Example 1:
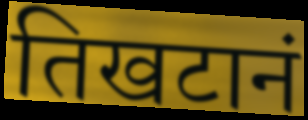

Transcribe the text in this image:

तिखटानं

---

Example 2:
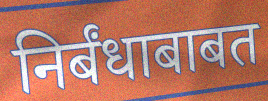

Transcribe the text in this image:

निर्बंधाबाबत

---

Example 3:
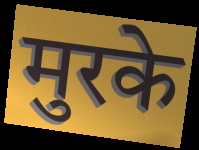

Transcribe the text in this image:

मुरके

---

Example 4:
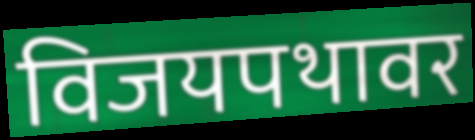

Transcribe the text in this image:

विजयपथावर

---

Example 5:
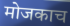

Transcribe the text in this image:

मोजकाच